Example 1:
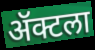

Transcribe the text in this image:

ॲक्टला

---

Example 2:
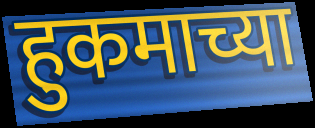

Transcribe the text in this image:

हुकमाच्या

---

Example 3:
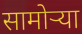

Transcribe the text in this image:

सामोऱ्या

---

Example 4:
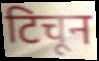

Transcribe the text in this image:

टिचून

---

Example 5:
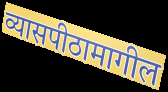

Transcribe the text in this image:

व्यासपीठामागील